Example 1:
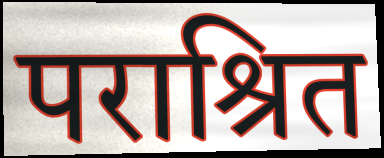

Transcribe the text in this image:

पराश्रित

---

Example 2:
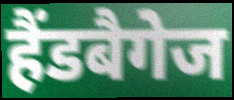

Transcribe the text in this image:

हैंडबैगेज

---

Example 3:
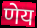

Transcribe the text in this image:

णेय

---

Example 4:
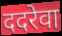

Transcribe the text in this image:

ददरेवा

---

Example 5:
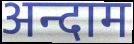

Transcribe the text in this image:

अन्दाम